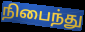
நிபைந்து